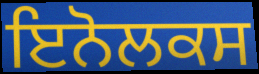
ਇਨੋਲਕਸ